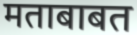
मताबाबत